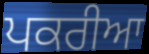
ਪਕਰੀਆ